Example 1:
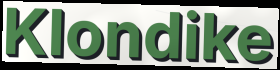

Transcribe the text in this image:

Klondike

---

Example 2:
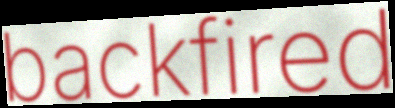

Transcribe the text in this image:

backfired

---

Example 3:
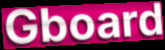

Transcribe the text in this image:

Gboard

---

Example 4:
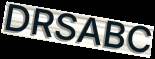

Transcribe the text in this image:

DRSABC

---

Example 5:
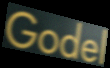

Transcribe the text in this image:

Godel